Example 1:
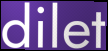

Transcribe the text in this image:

dilet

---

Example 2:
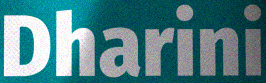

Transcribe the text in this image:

Dharini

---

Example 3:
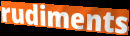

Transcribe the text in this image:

rudiments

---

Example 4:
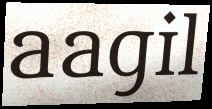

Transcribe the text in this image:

aagil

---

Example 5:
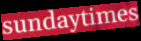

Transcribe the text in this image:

sundaytimes